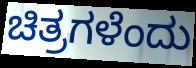
ಚಿತ್ರಗಳೆಂದು